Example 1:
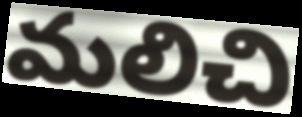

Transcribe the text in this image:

మలిచి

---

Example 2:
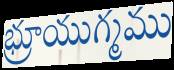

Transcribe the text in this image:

భ్రూయుగ్మము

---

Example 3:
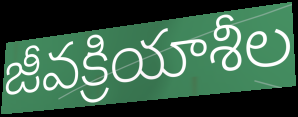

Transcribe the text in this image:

జీవక్రియాశీల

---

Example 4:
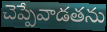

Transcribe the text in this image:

చెప్పేవాడతను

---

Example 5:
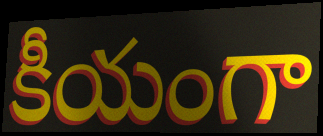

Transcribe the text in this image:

కీయంగా